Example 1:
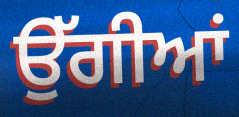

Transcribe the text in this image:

ਉੱਗੀਆਂ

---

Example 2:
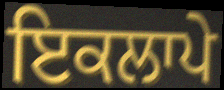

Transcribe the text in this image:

ਇਕਲਾਪੇ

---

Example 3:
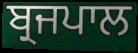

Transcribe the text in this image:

ਬ੍ਰਜਪਾਲ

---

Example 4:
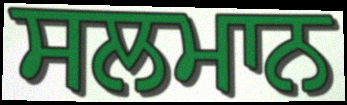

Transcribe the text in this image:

ਸਲਮਾਨ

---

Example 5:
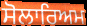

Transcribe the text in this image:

ਸੋਲਾਰਿਅਮ